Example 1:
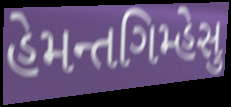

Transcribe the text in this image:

હેમન્તગિમ્હેસુ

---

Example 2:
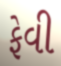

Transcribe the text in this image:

ફેવી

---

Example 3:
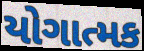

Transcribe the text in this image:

યોગાત્મક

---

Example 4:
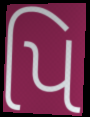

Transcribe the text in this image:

પિ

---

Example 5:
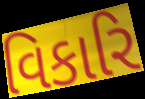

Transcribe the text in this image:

વિકારિ